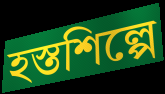
হস্তশিল্পে